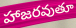
హాజరవుతూ